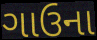
ગાઉના